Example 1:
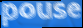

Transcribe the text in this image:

pouse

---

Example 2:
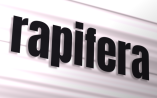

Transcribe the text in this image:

rapifera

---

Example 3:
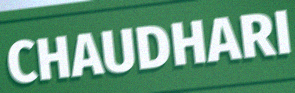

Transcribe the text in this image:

CHAUDHARI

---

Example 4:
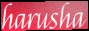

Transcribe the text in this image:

harusha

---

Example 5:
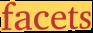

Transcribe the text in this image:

facets